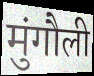
मुंगौली